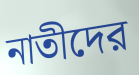
নাতীদের